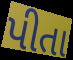
પીતા